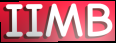
IIMB